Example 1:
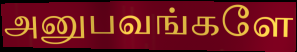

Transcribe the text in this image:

அனுபவங்களே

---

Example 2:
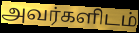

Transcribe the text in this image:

அவர்களிடம்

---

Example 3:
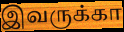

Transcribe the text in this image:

இவருக்கா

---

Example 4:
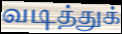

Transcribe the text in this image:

வடித்துக்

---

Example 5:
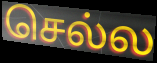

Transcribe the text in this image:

செல்ல